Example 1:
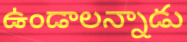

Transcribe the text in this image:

ఉండాలన్నాడు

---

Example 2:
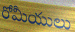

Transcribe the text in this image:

రోమీయులు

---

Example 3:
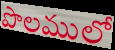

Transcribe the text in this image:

పొలములో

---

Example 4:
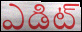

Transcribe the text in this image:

ఎడిట్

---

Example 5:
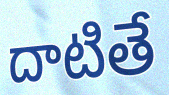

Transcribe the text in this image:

దాటితే